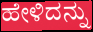
ಹೇಳಿದನ್ನು